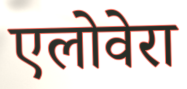
एलोवेरा